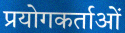
प्रयोगकर्ताओं